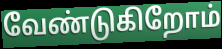
வேண்டுகிறோம்